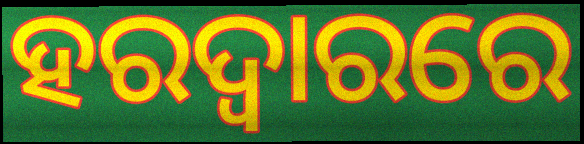
ହରଦ୍ୱାରରେ